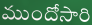
ముందోసారి